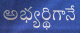
అభ్యర్థిగానే